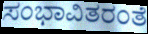
ಸಂಭಾವಿತರಂತೆ